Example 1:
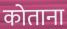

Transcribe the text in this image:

कोताना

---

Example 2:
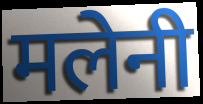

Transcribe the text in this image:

मलेनी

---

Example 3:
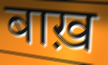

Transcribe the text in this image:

बाख़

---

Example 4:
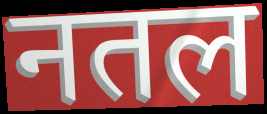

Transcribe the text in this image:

नतल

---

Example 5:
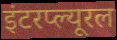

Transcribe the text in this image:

इंटरप्ल्यूरल